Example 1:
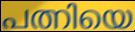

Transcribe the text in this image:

പത്നിയെ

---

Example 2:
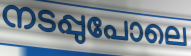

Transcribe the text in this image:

നടപ്പുപോലെ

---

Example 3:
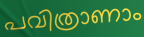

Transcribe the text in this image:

പവിത്രാണാം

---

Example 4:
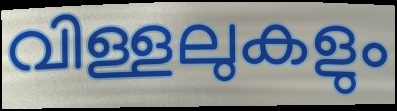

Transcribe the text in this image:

വിള്ളലുകളും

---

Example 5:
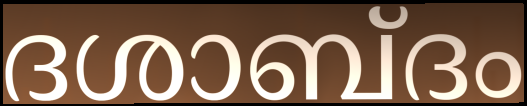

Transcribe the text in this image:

ദശാബ്ദം